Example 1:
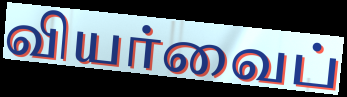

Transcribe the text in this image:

வியர்வைப்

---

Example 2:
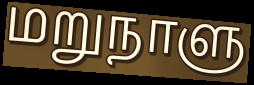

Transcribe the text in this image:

மறுநாளு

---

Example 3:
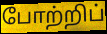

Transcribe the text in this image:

போற்றிப்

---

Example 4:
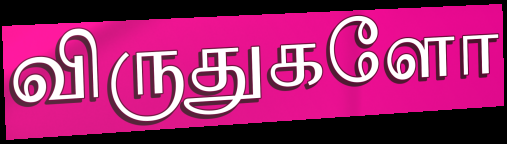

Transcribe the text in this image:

விருதுகளோ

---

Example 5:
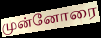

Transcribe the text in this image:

முன்னோரை